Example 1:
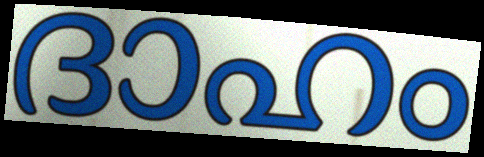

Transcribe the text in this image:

ദാഹം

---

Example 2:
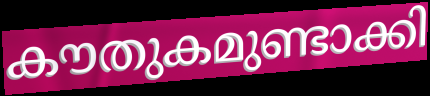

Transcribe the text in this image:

കൗതുകമുണ്ടാക്കി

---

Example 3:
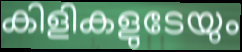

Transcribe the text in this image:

കിളികളുടേയും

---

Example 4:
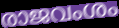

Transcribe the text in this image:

രാജവംശം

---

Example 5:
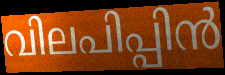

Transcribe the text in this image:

വിലപിപ്പിൻ